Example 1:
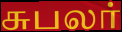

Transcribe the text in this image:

சுபலர்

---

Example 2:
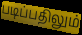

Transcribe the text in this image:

படிப்பதிலும்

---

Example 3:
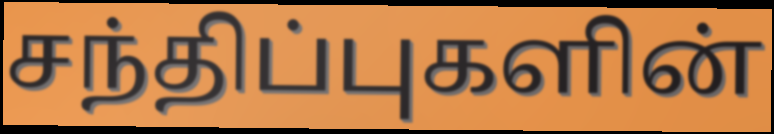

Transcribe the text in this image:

சந்திப்புகளின்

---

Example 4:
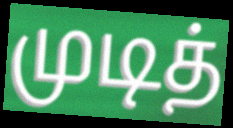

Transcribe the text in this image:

முடித்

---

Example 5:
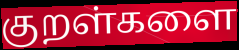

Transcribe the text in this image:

குறள்களை